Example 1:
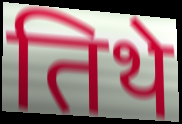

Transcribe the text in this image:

तिथे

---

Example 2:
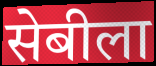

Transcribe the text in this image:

सेबीला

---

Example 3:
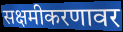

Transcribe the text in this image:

सक्षमीकरणावर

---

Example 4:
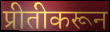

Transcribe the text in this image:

प्रीतीकरून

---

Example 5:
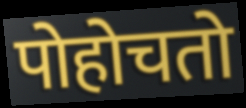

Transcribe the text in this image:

पोहोचतो